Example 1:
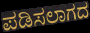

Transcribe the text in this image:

ಪಡಿಸಲಾಗದ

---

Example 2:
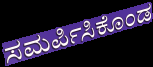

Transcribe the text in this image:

ಸಮರ್ಪಿಸಿಕೊಂಡ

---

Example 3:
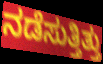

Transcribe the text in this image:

ನಡೆಸುತ್ತಿತ್ತು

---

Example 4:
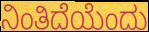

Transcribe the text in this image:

ನಿಂತಿದೆಯೆಂದು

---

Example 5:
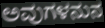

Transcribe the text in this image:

ಅವುಗಳನುನ